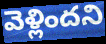
వెళ్లిందని